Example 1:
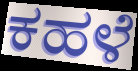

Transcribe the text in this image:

ಕಹಳೆ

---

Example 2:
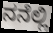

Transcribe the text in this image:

ನನೆಲ್ಲಿ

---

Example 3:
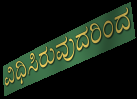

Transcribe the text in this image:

ವಿಧಿಸಿರುವುದರಿಂದ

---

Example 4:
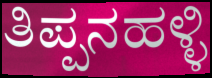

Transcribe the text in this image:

ತಿಪ್ಪನಹಳ್ಳಿ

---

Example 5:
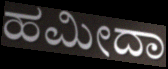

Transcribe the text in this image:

ಹಮೀದಾ